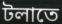
টলাতে